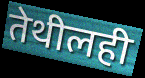
तेथीलही